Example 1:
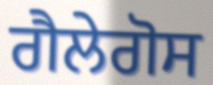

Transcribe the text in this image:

ਗੈਲੇਗੋਸ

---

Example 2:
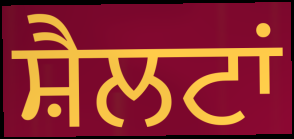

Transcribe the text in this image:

ਸ਼ੈਲਟਾਂ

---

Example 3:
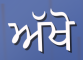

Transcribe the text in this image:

ਅੱਖੋ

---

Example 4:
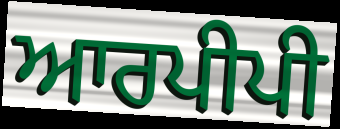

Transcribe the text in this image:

ਆਰਪੀਪੀ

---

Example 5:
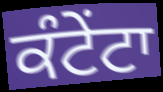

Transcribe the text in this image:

ਕੰਟੇਂਟਾ